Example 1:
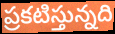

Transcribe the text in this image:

ప్రకటిస్తున్నది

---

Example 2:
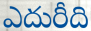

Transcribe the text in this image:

ఎదురీది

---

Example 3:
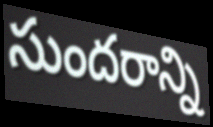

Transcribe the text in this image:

సుందరాన్ని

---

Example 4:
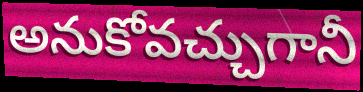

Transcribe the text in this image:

అనుకోవచ్చుగానీ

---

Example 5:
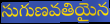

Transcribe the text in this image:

సుగుణవతియైన